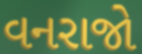
વનરાજો